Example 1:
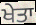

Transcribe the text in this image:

ਖੇਤਾ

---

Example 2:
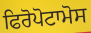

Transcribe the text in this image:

ਫਿਰੋਪੋਟਾਮੋਸ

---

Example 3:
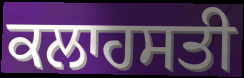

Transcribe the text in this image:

ਕਲਾਹਸਤੀ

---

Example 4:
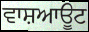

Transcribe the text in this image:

ਵਾਸ਼ਆਊਟ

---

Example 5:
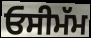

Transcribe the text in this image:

ਓਸੀਮੱਮ